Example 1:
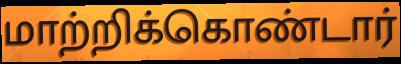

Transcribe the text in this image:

மாற்றிக்கொண்டார்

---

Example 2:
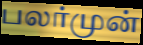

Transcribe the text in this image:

பலர்முன்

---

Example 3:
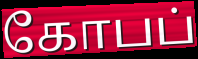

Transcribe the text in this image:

கோபப்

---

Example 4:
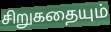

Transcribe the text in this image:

சிறுகதையும்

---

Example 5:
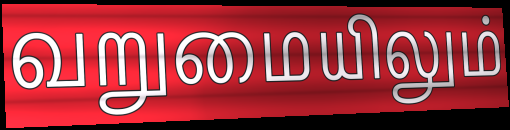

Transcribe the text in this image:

வறுமையிலும்